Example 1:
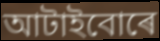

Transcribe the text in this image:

আটাইবোৰে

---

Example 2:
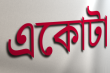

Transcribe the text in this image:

একোটা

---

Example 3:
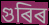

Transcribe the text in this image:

গুৰিৰ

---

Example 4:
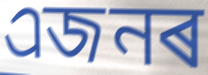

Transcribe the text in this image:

এজনৰ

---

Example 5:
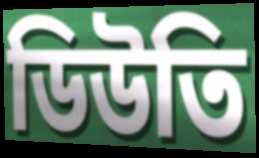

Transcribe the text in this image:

ডিউতি